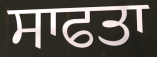
ਸਾਫਤਾ